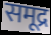
समूद्र